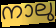
നാലു